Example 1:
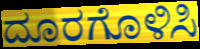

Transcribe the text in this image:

ದೂರಗೊಳಿಸಿ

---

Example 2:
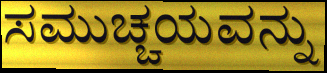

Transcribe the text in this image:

ಸಮುಚ್ಚಯವನ್ನು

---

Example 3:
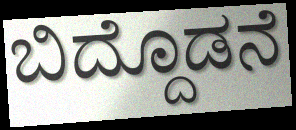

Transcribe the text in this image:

ಬಿದ್ದೊಡನೆ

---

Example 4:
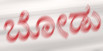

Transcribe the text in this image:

ಬೋಡು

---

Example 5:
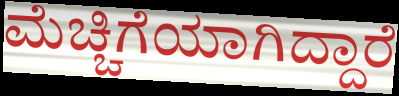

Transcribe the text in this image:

ಮೆಚ್ಚಿಗೆಯಾಗಿದ್ದಾರೆ